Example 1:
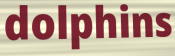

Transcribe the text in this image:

dolphins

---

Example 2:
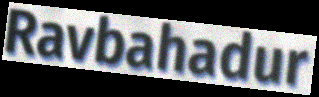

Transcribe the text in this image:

Ravbahadur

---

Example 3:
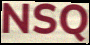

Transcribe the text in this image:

NSQ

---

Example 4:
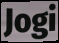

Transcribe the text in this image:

Jogi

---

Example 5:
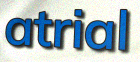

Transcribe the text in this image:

atrial